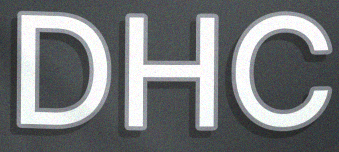
DHC